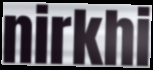
nirkhi